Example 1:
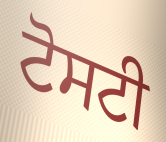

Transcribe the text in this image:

ਟੋਸਟੀ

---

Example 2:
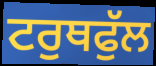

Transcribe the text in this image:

ਟਰੁਥਫੁੱਲ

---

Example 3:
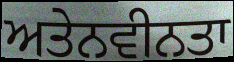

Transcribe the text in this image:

ਅਤੇਨਵੀਨਤਾ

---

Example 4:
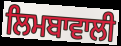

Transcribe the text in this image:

ਲਿਮਬਾਵਾਲੀ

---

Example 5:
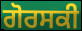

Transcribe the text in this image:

ਗੋਰਸਕੀ